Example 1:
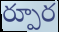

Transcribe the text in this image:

ర్పూర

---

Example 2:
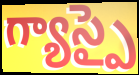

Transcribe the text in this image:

గ్యాస్పై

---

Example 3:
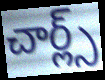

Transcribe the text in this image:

చార్ల్స్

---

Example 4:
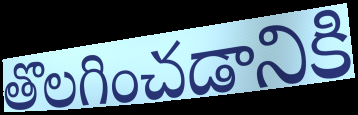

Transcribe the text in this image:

తొలగించడానికి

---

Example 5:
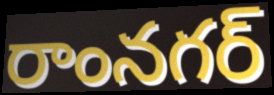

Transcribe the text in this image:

రాంనగర్